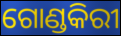
ଗୋଣ୍ଡକିରୀ